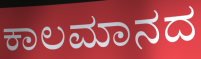
ಕಾಲಮಾನದ